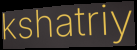
kshatriy